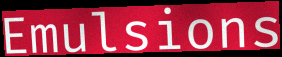
Emulsions